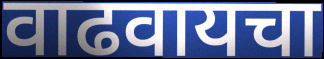
वाढवायचा